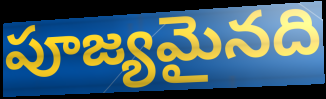
పూజ్యమైనది